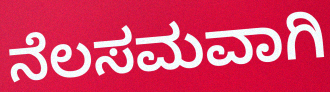
ನೆಲಸಮವಾಗಿ